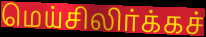
மெய்சிலிர்க்கச்